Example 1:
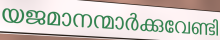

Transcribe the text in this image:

യജമാനന്മാർക്കുവേണ്ടി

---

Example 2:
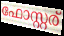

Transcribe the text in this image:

ഫോസ്റ്റര്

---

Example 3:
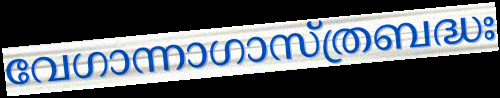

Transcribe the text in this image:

വേഗാന്നാഗാസ്ത്രബദ്ധഃ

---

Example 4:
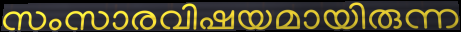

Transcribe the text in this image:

സംസാരവിഷയമായിരുന്ന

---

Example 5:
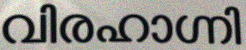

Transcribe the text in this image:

വിരഹാഗ്നി